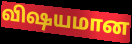
விஷயமான